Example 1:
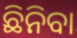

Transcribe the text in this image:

ଛିନିବା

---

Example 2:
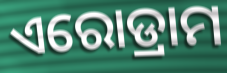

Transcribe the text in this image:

ଏରୋଡ୍ରାମ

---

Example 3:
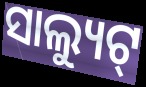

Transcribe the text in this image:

ସାଲ୍ୟୁଟ୍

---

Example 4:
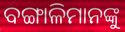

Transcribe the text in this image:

ବଙ୍ଗାଳିମାନଙ୍କୁ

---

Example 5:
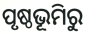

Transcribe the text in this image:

ପୃଷ୍ଠଭୂମିରୁ